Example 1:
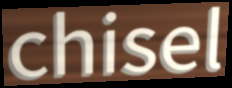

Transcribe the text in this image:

chisel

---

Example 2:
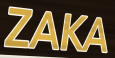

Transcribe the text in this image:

ZAKA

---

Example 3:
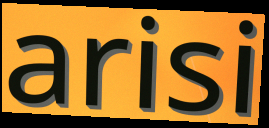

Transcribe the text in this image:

arisi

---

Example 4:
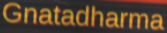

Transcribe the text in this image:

Gnatadharma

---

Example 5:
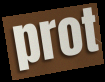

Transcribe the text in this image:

prot